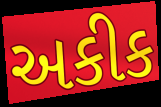
અકીક